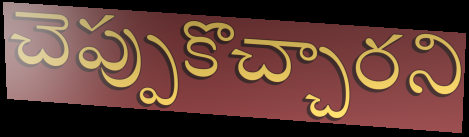
చెప్పుకొచ్చారని